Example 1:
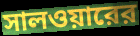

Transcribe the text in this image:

সালওয়ারের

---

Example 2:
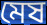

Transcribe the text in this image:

মেষ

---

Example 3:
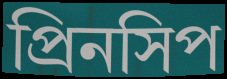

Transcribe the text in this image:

প্রিনসিপ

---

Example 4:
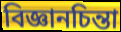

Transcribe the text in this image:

বিজ্ঞানচিন্তা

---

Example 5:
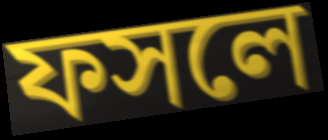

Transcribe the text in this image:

ফসলে